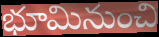
భూమినుంచి